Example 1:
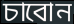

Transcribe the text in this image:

চাবোন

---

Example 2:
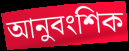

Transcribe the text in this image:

আনুবংশিক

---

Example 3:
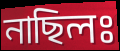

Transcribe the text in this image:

নাছিলঃ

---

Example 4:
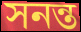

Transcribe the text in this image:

সনন্ত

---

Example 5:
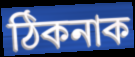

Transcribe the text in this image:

ঠিকনাক